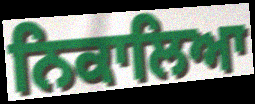
ਨਿਕਾਲਿਆ